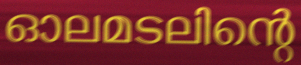
ഓലമടലിന്റെ